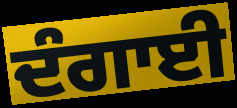
ਦੰਗਾਈ